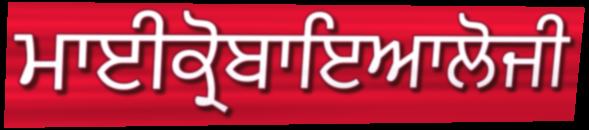
ਮਾਈਕ੍ਰੋਬਾਇਆਲੋਜੀ